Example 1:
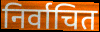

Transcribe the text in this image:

निर्वाचित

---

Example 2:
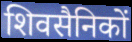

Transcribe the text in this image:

शिवसैनिकों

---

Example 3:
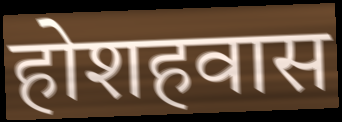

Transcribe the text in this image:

होशहवास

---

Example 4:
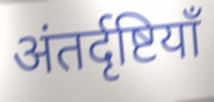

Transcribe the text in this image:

अंतर्दृष्टियाँ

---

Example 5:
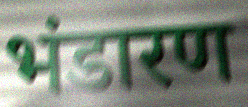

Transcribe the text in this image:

भंडारण